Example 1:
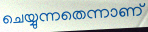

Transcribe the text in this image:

ചെയ്യുന്നതെന്നാണ്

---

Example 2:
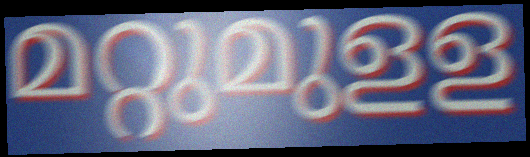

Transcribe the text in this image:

മറ്റുമുളള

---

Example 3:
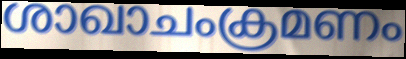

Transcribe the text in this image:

ശാഖാചംക്രമണം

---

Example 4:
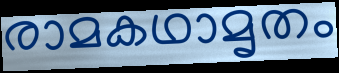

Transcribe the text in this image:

രാമകഥാമൃതം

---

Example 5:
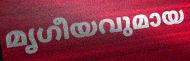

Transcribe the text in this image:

മൃഗീയവുമായ